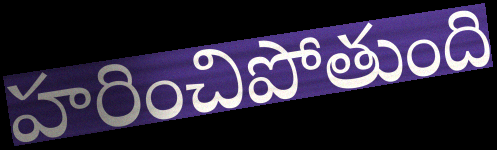
హరించిపోతుంది